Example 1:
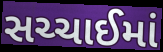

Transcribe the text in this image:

સચ્ચાઈમાં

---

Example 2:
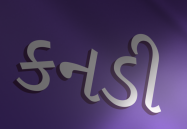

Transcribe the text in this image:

કનડી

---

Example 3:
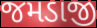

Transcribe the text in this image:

જમડાજી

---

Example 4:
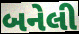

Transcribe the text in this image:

બનેલી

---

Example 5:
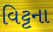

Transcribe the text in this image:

વિટ્ટના